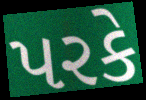
પરકે